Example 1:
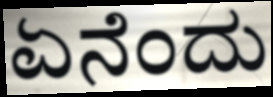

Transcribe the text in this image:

ಏನೆಂದು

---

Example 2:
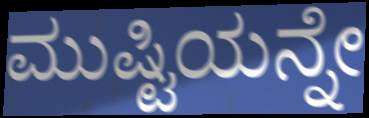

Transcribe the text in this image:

ಮುಷ್ಟಿಯನ್ನೇ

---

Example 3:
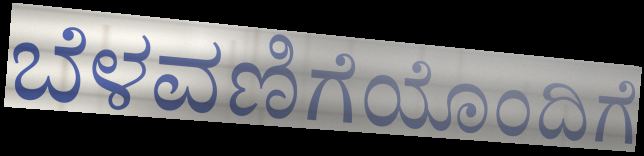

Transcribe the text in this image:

ಬೆಳವಣಿಗೆಯೊಂದಿಗೆ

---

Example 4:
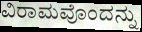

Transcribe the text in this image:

ವಿರಾಮವೊಂದನ್ನು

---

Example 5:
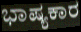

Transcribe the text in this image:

ಭಾಷ್ಯಕಾರ